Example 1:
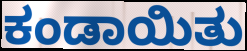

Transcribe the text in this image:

ಕಂಡಾಯಿತು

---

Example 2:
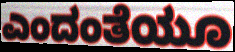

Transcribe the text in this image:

ಎಂದಂತೆಯೂ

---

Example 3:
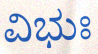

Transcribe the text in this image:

ವಿಭುಃ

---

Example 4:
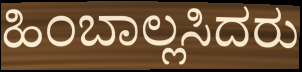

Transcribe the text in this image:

ಹಿಂಬಾಲ್ಲಸಿದರು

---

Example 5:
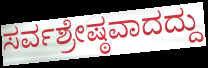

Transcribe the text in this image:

ಸರ್ವಶ್ರೇಷ್ಠವಾದದ್ದು